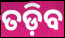
ତଡ଼ିବ